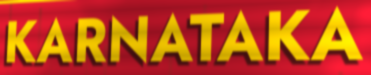
KARNATAKA